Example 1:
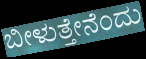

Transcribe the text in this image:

ಬೀಳುತ್ತೇನೆಂದು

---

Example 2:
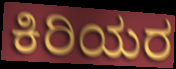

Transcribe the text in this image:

ಕಿರಿಯರ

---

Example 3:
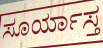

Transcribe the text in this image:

ಸೂರ್ಯಾಸ್ತ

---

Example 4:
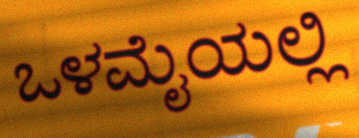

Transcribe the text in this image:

ಒಳಮೈಯಲ್ಲಿ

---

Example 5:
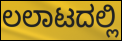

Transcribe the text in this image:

ಲಲಾಟದಲ್ಲಿ